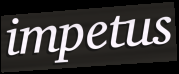
impetus